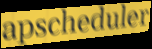
apscheduler